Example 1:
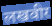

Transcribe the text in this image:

लखवीर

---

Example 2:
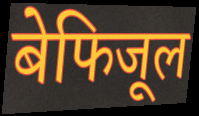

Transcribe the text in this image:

बेफिजूल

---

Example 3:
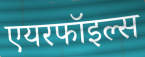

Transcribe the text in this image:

एयरफॉइल्स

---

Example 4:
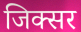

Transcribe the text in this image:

जिक्सर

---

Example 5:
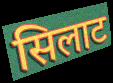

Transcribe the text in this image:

सिलाट